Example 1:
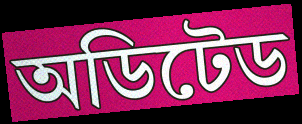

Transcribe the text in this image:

অডিটেড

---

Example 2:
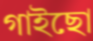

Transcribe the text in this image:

গাইছো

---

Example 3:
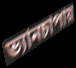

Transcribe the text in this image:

ভ্যানচাপায়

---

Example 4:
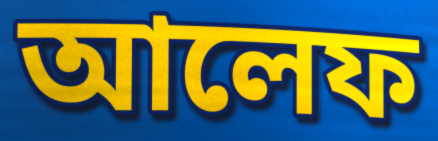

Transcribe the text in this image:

আলেফ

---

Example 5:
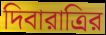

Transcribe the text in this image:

দিবারাত্রির